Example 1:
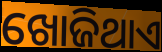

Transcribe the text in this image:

ଖୋଜିଥାଏ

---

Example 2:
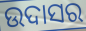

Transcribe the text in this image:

ଉଦାସର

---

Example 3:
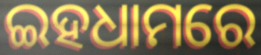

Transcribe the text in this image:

ଇହଧାମରେ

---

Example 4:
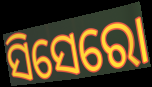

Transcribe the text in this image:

ସିସେରୋ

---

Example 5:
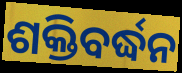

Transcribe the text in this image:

ଶକ୍ତିବର୍ଦ୍ଧନ